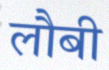
लौबी